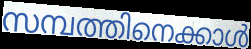
സമ്പത്തിനെക്കാൾ